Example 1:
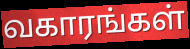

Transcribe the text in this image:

வகாரங்கள்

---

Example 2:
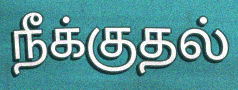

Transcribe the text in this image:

நீக்குதல்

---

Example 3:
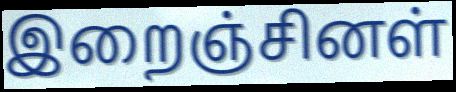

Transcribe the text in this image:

இறைஞ்சினள்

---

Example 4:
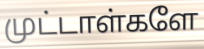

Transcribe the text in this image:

முட்டாள்களே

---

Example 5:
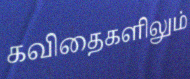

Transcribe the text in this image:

கவிதைகளிலும்